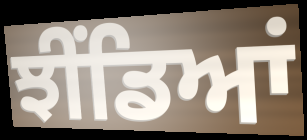
ਝੀਂਡਿਆਂ